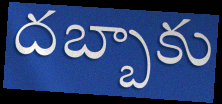
దబ్బాకు